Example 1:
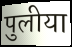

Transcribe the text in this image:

पुलीया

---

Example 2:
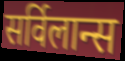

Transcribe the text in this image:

सर्विलान्स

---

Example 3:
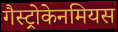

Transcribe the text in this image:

गैस्ट्रोकेनमियस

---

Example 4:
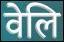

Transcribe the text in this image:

वेलि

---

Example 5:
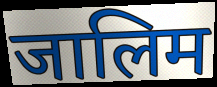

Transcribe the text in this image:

जालिम